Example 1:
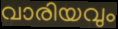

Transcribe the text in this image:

വാരിയവും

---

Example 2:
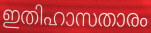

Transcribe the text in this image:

ഇതിഹാസതാരം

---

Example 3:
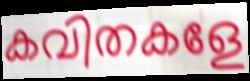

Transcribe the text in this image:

കവിതകളേ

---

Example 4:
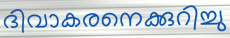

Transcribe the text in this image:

ദിവാകരനെക്കുറിച്ചു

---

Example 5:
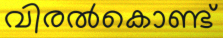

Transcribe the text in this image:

വിരൽകൊണ്ട്